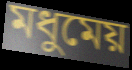
মধুমেয়